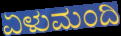
ಏಳುಮಂದಿ